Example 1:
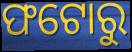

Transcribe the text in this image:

ଫଟୋରୁ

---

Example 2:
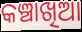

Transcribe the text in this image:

କଞ୍ଚାଖିଆ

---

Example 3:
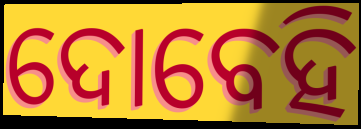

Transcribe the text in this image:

ଦୋବେହି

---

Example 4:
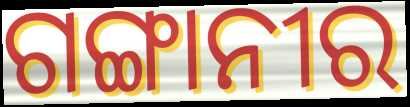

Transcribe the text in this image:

ଗଙ୍ଗାନୀର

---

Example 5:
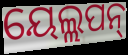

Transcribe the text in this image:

ୟେଲ୍ଲପନ୍